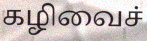
கழிவைச்